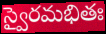
స్వైరమభితః